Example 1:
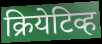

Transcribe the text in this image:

क्रियेटिव्ह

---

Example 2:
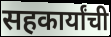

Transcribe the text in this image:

सहकार्यांची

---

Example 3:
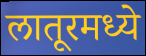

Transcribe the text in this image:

लातूरमध्ये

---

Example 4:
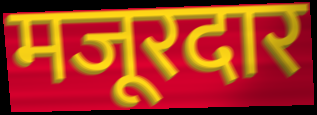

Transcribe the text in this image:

मजूरदार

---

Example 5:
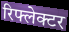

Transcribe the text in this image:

रिफ्लेक्टर